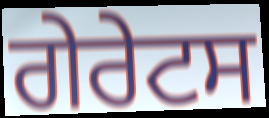
ਗੇਰੇਟਸ